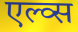
एल्व्स